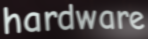
hardware